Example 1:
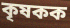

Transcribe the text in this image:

কৃষকক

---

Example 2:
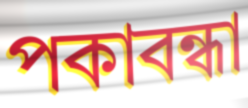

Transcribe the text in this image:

পকাবন্ধা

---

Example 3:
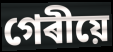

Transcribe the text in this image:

গেৰীয়ে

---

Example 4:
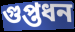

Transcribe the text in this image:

গুপ্তধন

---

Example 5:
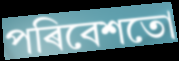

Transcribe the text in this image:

পৰিবেশতো